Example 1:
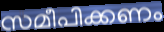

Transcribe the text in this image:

സമീപിക്കണം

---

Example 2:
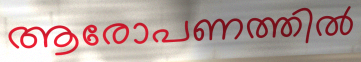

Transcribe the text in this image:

ആരോപണത്തിൽ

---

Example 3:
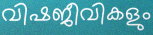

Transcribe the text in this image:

വിഷജീവികളും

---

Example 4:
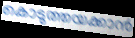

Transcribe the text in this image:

കൊടുത്തയക്കാൻ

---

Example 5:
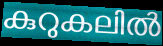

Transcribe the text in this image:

കുറുകലിൽ